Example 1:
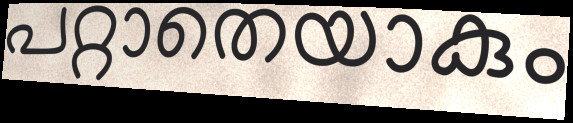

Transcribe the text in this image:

പറ്റാതെയാകും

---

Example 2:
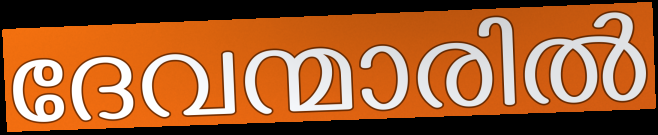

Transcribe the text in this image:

ദേവന്മാരിൽ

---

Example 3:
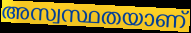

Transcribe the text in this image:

അസ്വസ്ഥതയാണ്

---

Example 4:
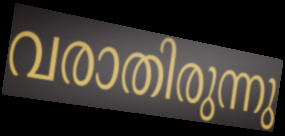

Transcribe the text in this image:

വരാതിരുന്നു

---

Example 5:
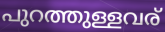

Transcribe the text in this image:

പുറത്തുള്ളവര്